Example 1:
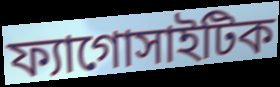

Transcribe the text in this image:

ফ্যাগোসাইটিক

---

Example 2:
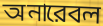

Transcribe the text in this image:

অনারেবল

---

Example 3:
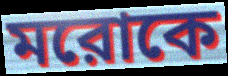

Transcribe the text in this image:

মরোকে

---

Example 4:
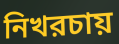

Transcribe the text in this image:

নিখরচায়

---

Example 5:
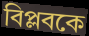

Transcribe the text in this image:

বিপ্লবকে